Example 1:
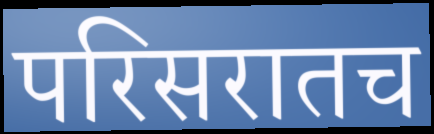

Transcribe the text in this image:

परिसरातच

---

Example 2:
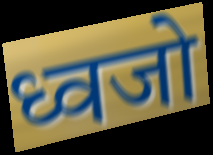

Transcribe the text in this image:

ध्वजो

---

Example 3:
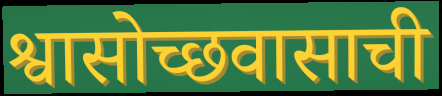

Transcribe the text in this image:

श्वासोच्छवासाची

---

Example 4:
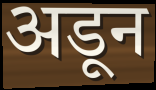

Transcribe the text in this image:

अडून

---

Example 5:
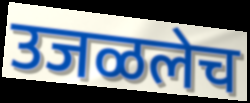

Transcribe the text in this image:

उजळलेच